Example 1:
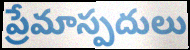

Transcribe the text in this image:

ప్రేమాస్పదులు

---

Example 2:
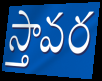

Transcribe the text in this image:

స్తావర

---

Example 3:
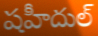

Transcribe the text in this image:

షహీదుల్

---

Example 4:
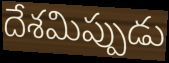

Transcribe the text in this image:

దేశమిప్పుడు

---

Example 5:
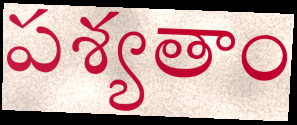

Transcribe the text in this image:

పశ్యతాం